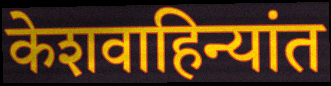
केशवाहिन्यांत